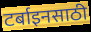
टर्बाइनसाठी